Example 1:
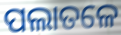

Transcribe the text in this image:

ପଲାତଳେ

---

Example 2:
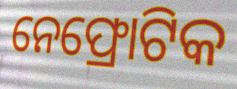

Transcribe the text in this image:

ନେଫ୍ରୋଟିକ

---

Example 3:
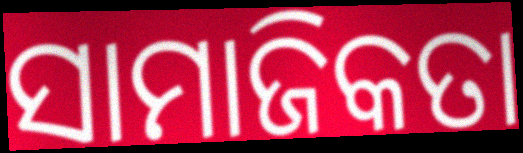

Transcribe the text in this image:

ସାମାଜିକତା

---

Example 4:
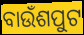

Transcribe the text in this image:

ବାଉଁଶପୁଟ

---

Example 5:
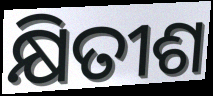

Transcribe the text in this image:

କ୍ଷିତୀଶ